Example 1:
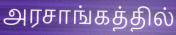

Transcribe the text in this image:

அரசாங்கத்தில்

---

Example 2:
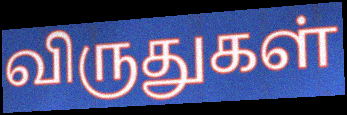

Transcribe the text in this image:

விருதுகள்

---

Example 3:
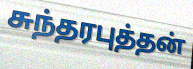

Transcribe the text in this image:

சுந்தரபுத்தன்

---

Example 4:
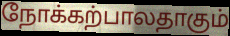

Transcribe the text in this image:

நோக்கற்பாலதாகும்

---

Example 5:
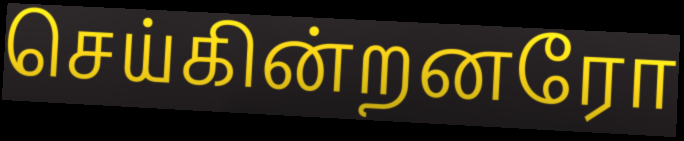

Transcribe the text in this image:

செய்கின்றனரோ